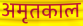
अमृतकाल